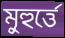
মুহুর্ত্তে